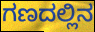
ಗಣದಲ್ಲಿನ